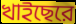
খাইছেরে